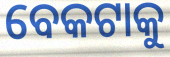
ବେକଟାକୁ